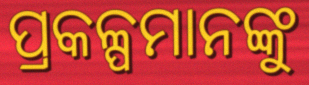
ପ୍ରକଳ୍ପମାନଙ୍କୁ